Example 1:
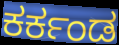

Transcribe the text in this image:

ಕರ್ಕಂಡ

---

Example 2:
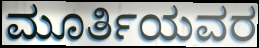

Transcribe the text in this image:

ಮೂರ್ತಿಯವರ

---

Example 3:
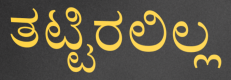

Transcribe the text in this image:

ತಟ್ಟಿರಲಿಲ್ಲ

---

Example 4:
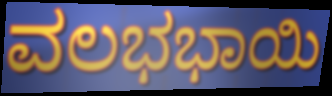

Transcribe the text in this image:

ವಲಭಭಾಯಿ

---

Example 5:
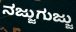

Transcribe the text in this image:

ನಜ್ಜುಗುಜ್ಜು